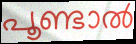
പൂണ്ടാൽ